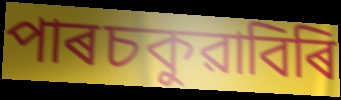
পাৰচকুৱাবিৰি